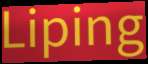
Liping